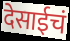
देसाईचं